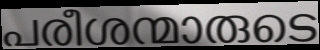
പരീശന്മാരുടെ